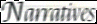
Narratives